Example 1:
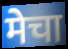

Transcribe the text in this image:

मेचा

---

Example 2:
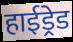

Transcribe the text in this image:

हाईड्रेड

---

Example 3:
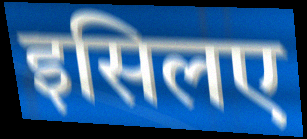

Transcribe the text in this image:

इसिलए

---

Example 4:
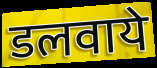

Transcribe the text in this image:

डलवाये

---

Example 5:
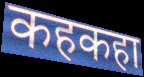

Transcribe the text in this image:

कहकहा